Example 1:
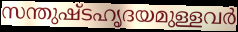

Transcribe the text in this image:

സന്തുഷ്ടഹൃദയമുള്ളവർ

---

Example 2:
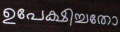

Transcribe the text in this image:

ഉപേക്ഷിച്ചതോ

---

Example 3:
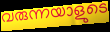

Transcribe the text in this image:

വരുന്നയാളുടെ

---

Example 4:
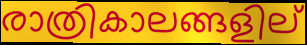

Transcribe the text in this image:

രാത്രികാലങ്ങളില്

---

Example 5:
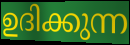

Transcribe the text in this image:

ഉദിക്കുന്ന